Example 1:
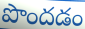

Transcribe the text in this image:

పొందడం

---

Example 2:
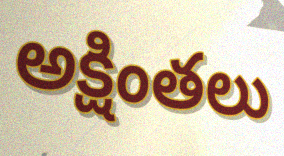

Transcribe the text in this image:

అక్షింతలు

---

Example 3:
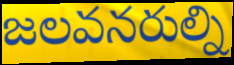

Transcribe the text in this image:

జలవనరుల్ని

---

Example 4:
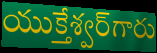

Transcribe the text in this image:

యుక్తేశ్వర్‌గారు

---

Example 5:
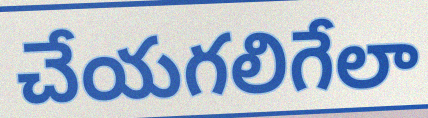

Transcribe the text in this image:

చేయగలిగేలా